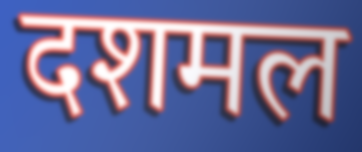
दशमल